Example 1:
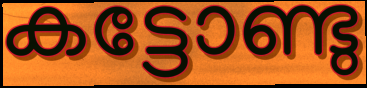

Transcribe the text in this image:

കട്ടോണ്ടു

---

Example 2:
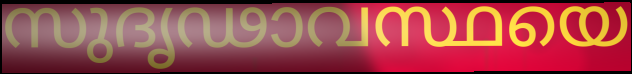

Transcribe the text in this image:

സുദൃഢാവസ്ഥയെ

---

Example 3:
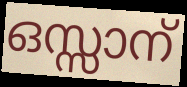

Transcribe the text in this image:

ഒസ്സാന്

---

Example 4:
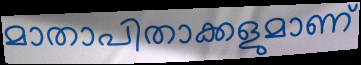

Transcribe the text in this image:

മാതാപിതാക്കളുമാണ്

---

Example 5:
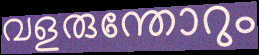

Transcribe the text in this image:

വളരുന്തോറും